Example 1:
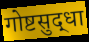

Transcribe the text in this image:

गोष्टसुद्धा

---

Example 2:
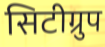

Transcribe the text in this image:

सिटीग्रुप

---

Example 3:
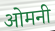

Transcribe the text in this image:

ओमनी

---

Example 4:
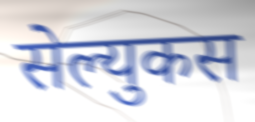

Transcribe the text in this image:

सेल्युकस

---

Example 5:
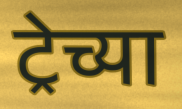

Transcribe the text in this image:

ट्रेच्या